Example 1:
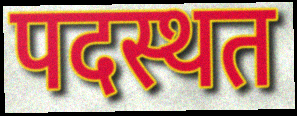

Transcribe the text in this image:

पदस्थत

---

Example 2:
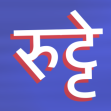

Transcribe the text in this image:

रुट्टे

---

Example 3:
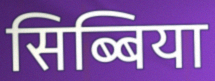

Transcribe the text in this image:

सिब्बिया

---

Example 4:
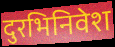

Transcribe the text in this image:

दुरभिनिवेश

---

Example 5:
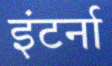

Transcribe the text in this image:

इंटर्ना